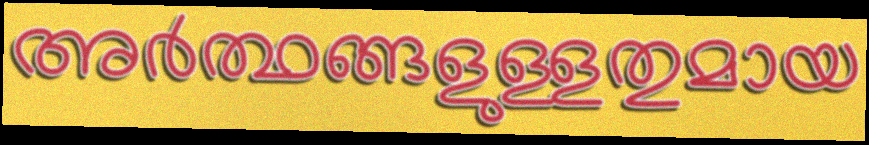
അർത്ഥങ്ങളുള്ളതുമായ